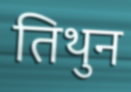
तिथुन